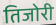
तिजोरी